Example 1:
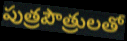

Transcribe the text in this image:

పుత్రపౌత్రులతో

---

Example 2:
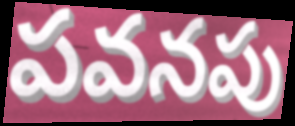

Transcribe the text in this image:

పవనపు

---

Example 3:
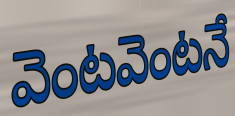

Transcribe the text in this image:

వెంటవెంటనే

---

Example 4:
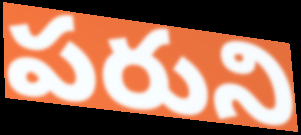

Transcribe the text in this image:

పరుని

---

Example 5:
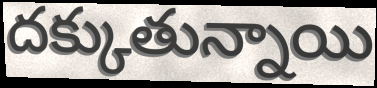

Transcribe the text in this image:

దక్కుతున్నాయి